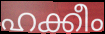
ഹക്കീം